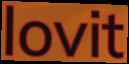
lovit